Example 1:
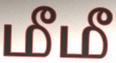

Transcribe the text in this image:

மீமீ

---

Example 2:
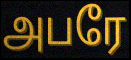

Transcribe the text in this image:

அபரே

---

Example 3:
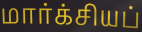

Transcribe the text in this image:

மார்க்சியப்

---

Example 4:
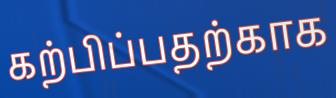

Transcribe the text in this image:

கற்பிப்பதற்காக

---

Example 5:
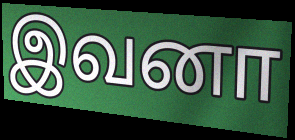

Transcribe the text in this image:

இவனா